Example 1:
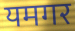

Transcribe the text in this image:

यमगर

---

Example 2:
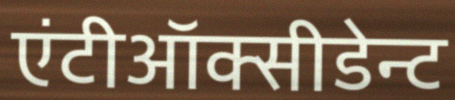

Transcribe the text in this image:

एंटीऑक्सीडेन्ट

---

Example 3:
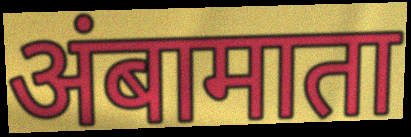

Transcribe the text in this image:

अंबामाता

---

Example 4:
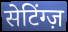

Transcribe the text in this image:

सेटिंग्ज़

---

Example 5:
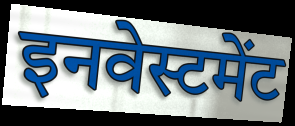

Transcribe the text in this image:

इनवेस्‍टमेंट